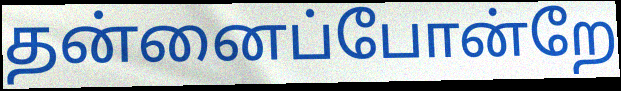
தன்னைப்போன்றே